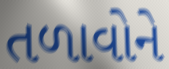
તળાવોને